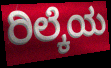
ರಿಲ್ಕೆಯ